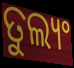
ତୁଲ୍ୟଂ